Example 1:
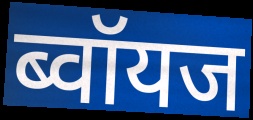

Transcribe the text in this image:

ब्वॉयज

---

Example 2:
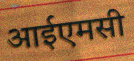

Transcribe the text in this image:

आईएमसी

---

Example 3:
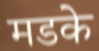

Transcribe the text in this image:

मडके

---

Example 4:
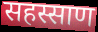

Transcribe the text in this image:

सहस्साण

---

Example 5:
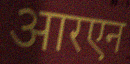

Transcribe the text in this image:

आरएन